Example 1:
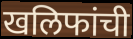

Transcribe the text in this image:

खलिफांची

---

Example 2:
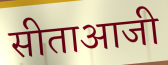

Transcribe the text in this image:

सीताआजी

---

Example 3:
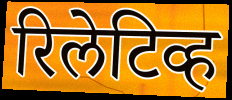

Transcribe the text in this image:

रिलेटिव्ह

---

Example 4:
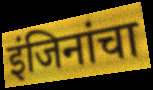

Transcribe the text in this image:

इंजिनांचा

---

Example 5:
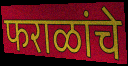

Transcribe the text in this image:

फराळांचे